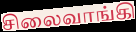
சிலைவாங்கி